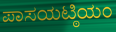
ಪಾಸಯಟ್ಠಿಯಂ